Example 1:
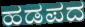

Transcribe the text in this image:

ಹಡಪದ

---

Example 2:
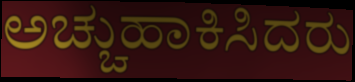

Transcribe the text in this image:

ಅಚ್ಚುಹಾಕಿಸಿದರು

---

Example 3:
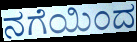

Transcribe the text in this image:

ನಗೆಯಿಂದ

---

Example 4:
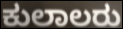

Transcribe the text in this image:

ಕುಲಾಲರು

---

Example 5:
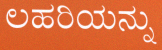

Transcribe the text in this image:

ಲಹರಿಯನ್ನು